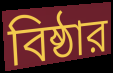
বিষ্ঠার